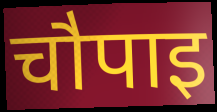
चौपाइ